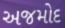
અજમોદ